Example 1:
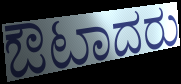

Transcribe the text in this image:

ಔಟಾದರು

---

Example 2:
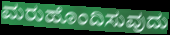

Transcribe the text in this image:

ಮರುಹೊಂದಿಸುವುದು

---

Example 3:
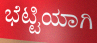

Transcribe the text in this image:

ಭೆಟ್ಟಿಯಾಗಿ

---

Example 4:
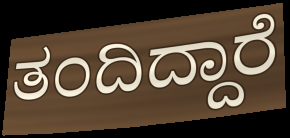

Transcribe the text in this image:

ತಂದಿದ್ದಾರೆ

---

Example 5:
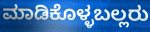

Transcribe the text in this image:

ಮಾಡಿಕೊಳ್ಳಬಲ್ಲರು